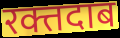
रक्तदाब